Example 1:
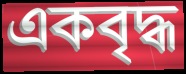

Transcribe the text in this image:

একবৃদ্ধ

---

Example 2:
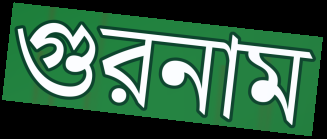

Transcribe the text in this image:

গুরনাম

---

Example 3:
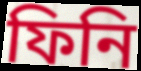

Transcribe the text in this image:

ফিনি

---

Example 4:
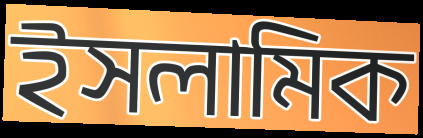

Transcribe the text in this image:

ইসলামিক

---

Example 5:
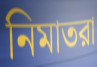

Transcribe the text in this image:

নিমাতরা